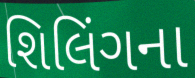
શિલિંગના